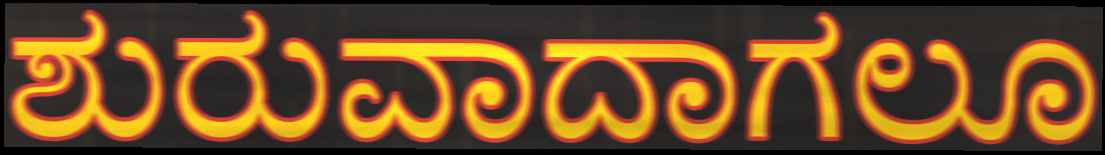
ಶುರುವಾದಾಗಲೂ